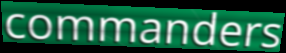
commanders